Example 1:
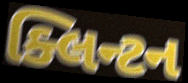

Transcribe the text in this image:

ક્લિન્ટન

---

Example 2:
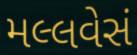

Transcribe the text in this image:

મલ્લવેસં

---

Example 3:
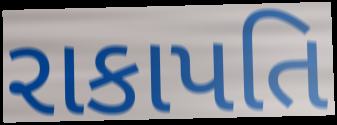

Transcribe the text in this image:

રાકાપતિ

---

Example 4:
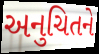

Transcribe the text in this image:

અનુચિતને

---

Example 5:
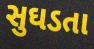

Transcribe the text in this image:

સુઘડતા